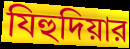
যিহুদিয়ার